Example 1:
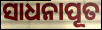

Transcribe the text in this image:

ସାଧନାପୂତ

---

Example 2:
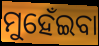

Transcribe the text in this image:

ମୁହେଁଇବା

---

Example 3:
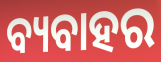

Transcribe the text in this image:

ବ୍ୟବାହର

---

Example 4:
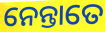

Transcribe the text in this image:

ନେନ୍ତାତେ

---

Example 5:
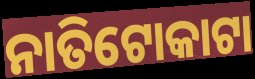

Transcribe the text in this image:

ନାତିଟୋକାଟା